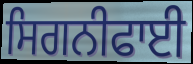
ਸਿਗਨੀਫਾਈ